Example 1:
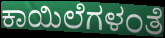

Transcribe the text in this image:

ಕಾಯಿಲೆಗಳಂತೆ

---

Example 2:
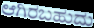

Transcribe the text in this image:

ಆಗಿರಬಹುದು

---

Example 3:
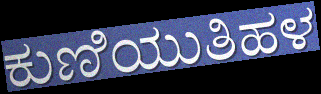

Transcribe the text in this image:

ಕುಣಿಯುತಿಹಳ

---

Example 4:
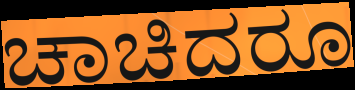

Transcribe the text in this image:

ಚಾಚಿದರೂ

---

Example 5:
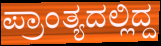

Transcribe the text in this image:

ಪ್ರಾಂತ್ಯದಲ್ಲಿದ್ದ